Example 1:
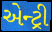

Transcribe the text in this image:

એન્‍ટ્રી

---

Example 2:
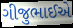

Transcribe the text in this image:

ગીજુભાઈએ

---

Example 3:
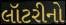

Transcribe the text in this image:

લૉટરીનો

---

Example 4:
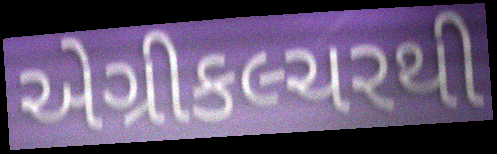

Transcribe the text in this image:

એગ્રીકલ્ચરથી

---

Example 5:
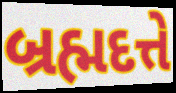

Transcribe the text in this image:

બ્રહ્મદત્તે